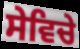
ਸੇਵਿਚੇ